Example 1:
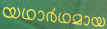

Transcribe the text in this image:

യഥാർഥമായ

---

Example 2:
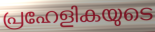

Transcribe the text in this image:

പ്രഹേളികയുടെ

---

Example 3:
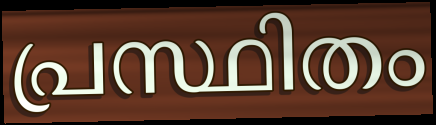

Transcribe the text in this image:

പ്രസ്ഥിതം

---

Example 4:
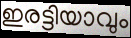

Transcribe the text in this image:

ഇരട്ടിയാവും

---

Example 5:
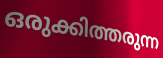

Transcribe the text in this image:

ഒരുക്കിത്തരുന്ന